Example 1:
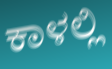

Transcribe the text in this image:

ಕಾಳಲ್ಲಿ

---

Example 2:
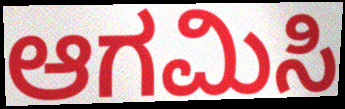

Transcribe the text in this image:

ಆಗಮಿಸಿ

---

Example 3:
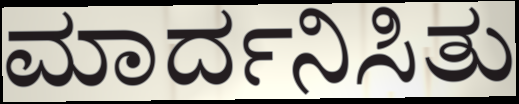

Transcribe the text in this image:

ಮಾರ್ದನಿಸಿತು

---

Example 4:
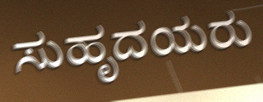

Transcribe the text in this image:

ಸುಹೃದಯರು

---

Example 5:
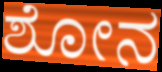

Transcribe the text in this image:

ಶೋನ